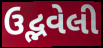
ઉદ્ભવેલી